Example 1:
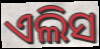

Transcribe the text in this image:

ଏଲିସ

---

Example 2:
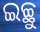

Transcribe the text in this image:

ଇଚ୍ଛୁ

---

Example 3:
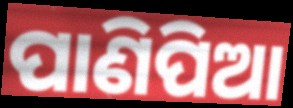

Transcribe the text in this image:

ପାଣିପିଆ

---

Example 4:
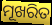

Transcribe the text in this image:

ମୂଖରିତ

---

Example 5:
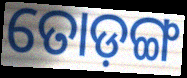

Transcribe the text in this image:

ତୋଡ଼ଙ୍ଗ